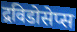
द्रविडोसेप्स